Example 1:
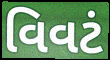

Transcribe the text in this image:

વિવટં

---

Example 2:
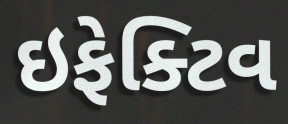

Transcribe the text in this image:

ઇફેક્ટિવ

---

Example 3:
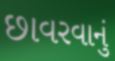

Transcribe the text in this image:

છાવરવાનું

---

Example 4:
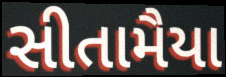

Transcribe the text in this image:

સીતામૈયા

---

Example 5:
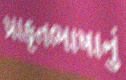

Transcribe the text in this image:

પ્રાકૃતભાષાનું